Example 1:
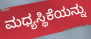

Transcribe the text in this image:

ಮಧ್ಯಸ್ಥಿಕೆಯನ್ನು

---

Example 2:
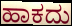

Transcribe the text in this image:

ಹಾಕದು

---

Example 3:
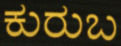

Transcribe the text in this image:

ಕುರುಬ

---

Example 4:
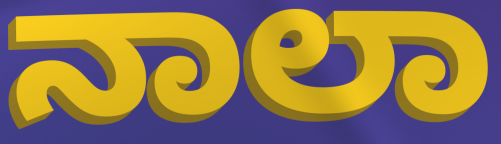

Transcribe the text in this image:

ನಾಲಾ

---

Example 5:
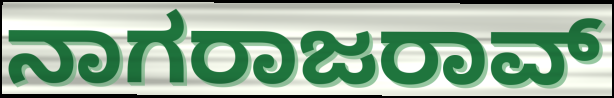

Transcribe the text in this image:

ನಾಗರಾಜರಾವ್